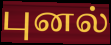
புனல்